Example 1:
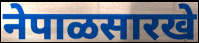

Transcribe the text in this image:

नेपाळसारखे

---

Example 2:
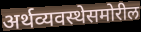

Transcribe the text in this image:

अर्थव्यवस्थेसमोरील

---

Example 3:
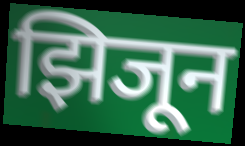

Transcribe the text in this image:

झिजून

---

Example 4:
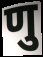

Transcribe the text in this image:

णु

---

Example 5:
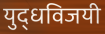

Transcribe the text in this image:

युद्धविजयी